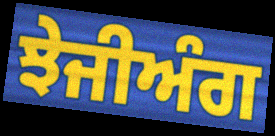
ਝੇਜੀਅੰਗ